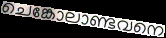
ചെങ്കോലാണ്ടവനെ